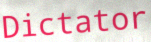
Dictator